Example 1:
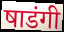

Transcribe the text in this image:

षाडंगी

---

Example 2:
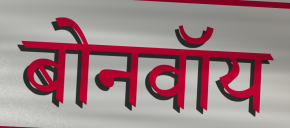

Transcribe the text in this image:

बोनवॉय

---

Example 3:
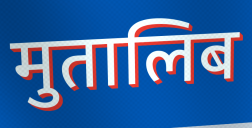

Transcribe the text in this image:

मुतालिब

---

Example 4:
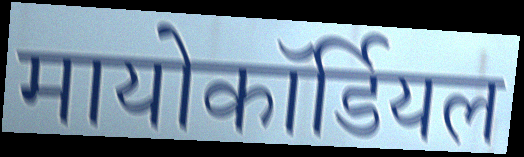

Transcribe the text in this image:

मायोकॉर्डियल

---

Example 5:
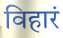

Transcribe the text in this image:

विहारं